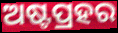
ଅଷ୍ଟପ୍ରହର